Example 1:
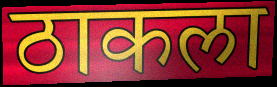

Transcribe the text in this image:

ठाकला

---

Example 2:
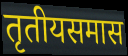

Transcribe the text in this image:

तृतीयसमास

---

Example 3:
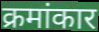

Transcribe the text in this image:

क्रमांकार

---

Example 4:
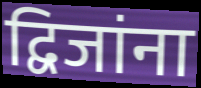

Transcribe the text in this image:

द्विजांना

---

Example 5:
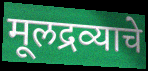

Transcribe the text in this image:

मूलद्रव्याचे